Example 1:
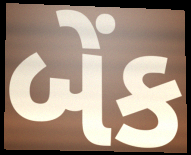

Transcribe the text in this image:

બેંક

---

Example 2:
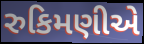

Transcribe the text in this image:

રુકિમણીએ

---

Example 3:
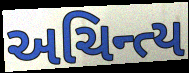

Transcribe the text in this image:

અચિન્ત્ય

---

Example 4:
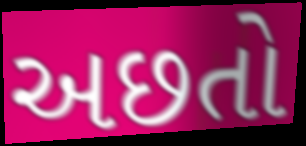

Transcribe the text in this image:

અછતો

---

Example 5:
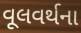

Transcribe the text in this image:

વૂલવર્થના